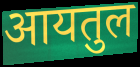
आयतुल